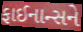
ફાઈનાન્સને